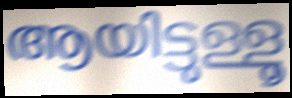
ആയിട്ടുള്ളൂ